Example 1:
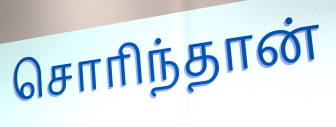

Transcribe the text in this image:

சொரிந்தான்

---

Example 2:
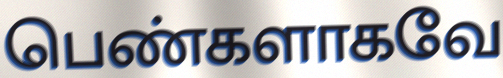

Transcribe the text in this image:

பெண்களாகவே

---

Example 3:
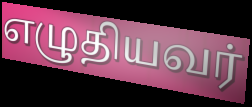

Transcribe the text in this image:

எழுதியவர்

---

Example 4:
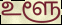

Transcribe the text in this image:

உளூ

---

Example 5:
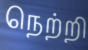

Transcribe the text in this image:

நெற்றி